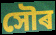
সৌৰ